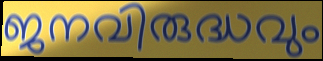
ജനവിരുദ്ധവും